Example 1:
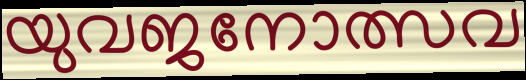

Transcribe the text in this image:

യുവജനോത്സവ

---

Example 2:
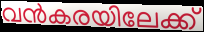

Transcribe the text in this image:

വൻകരയിലേക്ക്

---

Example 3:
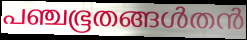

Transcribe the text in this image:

പഞ്ചഭൂതങ്ങൾതൻ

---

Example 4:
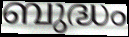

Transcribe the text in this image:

ബുദ്ധം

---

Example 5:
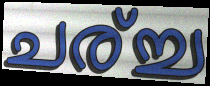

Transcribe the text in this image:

ചര്ച്ച